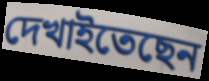
দেখাইতেছেন